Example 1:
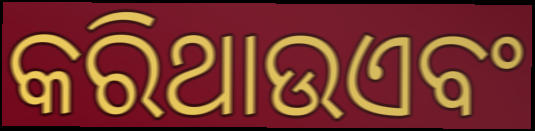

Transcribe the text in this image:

କରିଥାଉଏବଂ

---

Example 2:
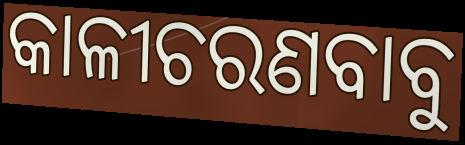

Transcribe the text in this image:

କାଳୀଚରଣବାବୁ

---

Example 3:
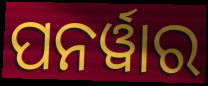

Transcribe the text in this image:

ପନର୍ୱାର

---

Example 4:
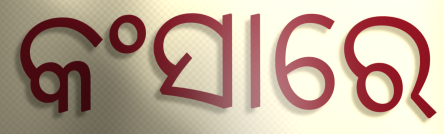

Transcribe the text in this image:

କଂସାରେ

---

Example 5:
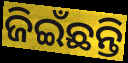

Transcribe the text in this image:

ଜିଇଁଛନ୍ତି